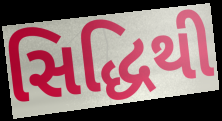
સિદ્ધિથી